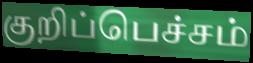
குறிப்பெச்சம்